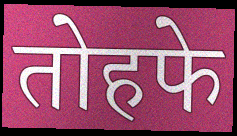
तोहफे